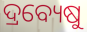
ଦ୍ରବ୍ୟେଷୁ